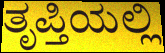
ತೃಪ್ತಿಯಲ್ಲಿ